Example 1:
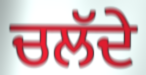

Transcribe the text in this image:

ਚਲੱਦੇ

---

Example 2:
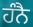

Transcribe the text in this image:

ਹੰਨੈ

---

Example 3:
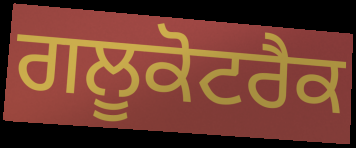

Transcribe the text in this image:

ਗਲੂਕੋਟਰੈਕ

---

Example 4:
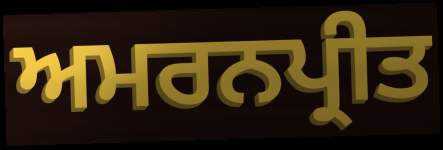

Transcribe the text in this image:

ਅਮਰਨਪ੍ਰੀਤ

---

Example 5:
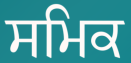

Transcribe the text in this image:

ਸਮਿਕ